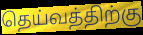
தெய்வத்திற்கு